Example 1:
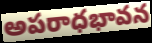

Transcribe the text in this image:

అపరాధభావన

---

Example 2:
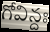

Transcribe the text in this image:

గోవిన్దః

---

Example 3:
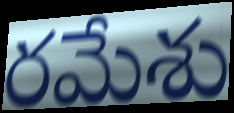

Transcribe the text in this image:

రమేశు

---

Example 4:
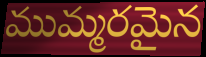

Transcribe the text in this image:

ముమ్మరమైన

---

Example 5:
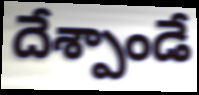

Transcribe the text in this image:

దేశ్పాండే